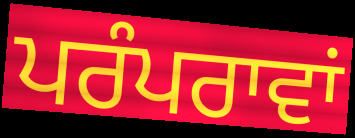
ਪਰੰਪਰਾਵਾਂ